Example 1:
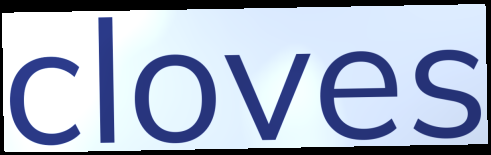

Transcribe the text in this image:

cloves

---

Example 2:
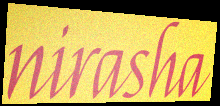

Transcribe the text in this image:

nirasha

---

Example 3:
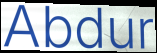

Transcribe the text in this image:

Abdur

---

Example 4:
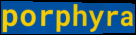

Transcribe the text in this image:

porphyra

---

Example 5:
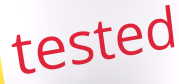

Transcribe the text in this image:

tested